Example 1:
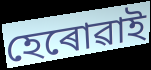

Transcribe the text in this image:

হেৰোৱাই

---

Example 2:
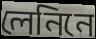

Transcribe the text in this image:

লেনিনে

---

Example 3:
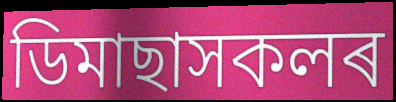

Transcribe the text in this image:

ডিমাছাসকলৰ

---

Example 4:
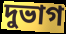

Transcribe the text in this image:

দুভাগ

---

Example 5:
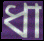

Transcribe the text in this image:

ধা